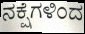
ನಕ್ಷೆಗಳಿಂದ